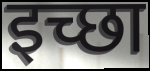
इच्छा